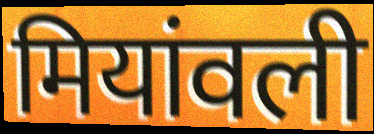
मियांवली